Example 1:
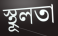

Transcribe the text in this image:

স্থূলতা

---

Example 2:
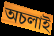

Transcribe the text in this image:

অচলাই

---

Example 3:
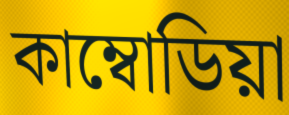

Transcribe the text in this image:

কাম্বোডিয়া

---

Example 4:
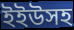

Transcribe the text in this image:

ইইউসহ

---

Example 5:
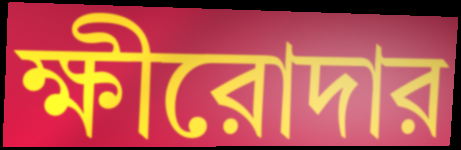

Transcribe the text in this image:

ক্ষীরোদার